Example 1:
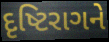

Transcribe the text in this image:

દૃષ્ટિરાગને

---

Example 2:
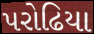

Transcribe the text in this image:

પરોઢિયા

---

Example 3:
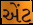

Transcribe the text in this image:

એંટ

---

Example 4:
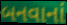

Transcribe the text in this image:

બનવાનાં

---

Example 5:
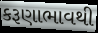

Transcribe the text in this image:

કરૂણાભાવથી